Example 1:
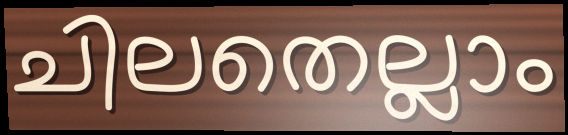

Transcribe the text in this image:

ചിലതെല്ലാം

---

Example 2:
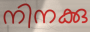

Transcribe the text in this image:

നിനക്കു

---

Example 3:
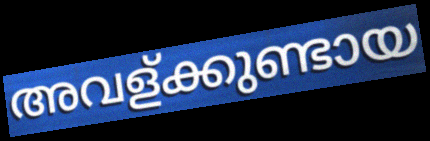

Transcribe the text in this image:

അവള്ക്കുണ്ടായ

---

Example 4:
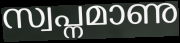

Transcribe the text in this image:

സ്വപ്നമാണു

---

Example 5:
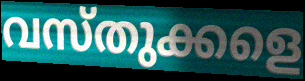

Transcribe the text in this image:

വസ്തുക്കളെ